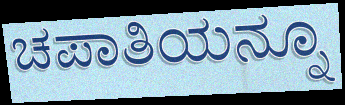
ಚಪಾತಿಯನ್ನೂ